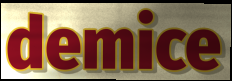
demice